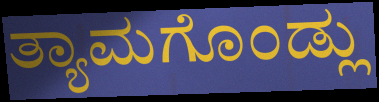
ತ್ಯಾಮಗೊಂಡ್ಲು